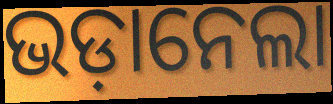
ଭଡ଼ାନେଲା